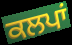
ਕਲਪਾਂ